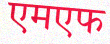
एमएफ